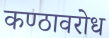
कण्ठावरोध